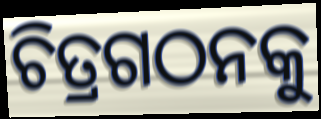
ଚିତ୍ରଗଠନକୁ